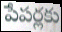
పేపర్లకు